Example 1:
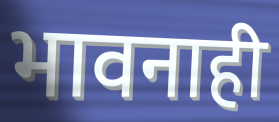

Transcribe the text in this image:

भावनाही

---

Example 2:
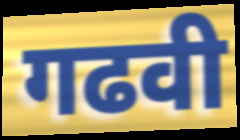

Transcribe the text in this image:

गढवी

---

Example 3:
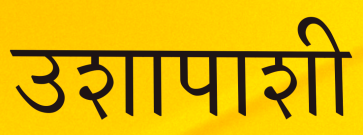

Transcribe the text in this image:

उशापाशी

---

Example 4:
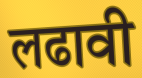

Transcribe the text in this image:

लढावी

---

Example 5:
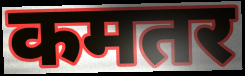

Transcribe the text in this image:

कमतर